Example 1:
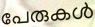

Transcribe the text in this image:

പേരുകൾ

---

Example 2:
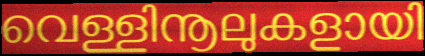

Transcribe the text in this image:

വെള്ളിനൂലുകളായി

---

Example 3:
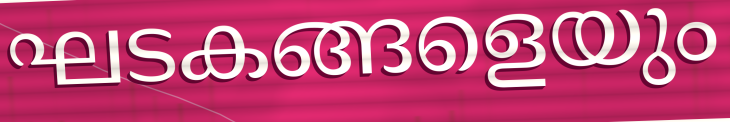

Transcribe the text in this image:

ഘടകങ്ങളെയും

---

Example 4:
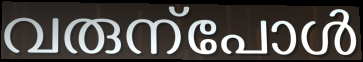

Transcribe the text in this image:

വരുന്പോൾ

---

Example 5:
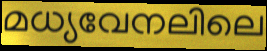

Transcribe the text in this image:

മധ്യവേനലിലെ